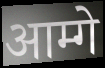
आम्गे